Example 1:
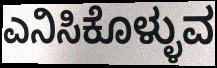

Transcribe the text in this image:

ಎನಿಸಿಕೊಳ್ಳುವ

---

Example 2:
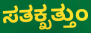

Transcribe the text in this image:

ಸತಕ್ಖತ್ತುಂ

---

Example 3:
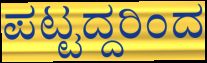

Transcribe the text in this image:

ಪಟ್ಟದ್ದರಿಂದ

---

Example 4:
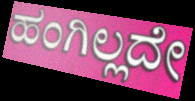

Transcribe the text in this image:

ಹಂಗಿಲ್ಲದೇ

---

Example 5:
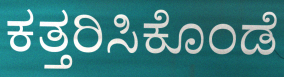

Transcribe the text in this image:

ಕತ್ತರಿಸಿಕೊಂಡೆ